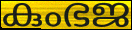
കുംഭജ